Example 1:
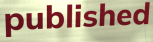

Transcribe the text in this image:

published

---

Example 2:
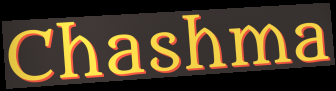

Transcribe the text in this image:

Chashma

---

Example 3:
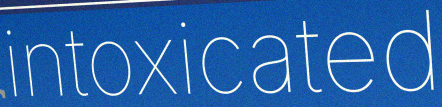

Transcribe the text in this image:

intoxicated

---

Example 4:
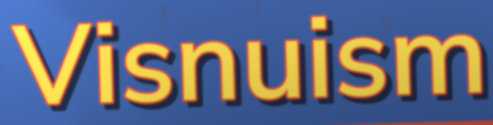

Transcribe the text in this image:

Visnuism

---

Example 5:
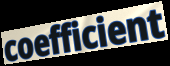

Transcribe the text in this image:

coefficient